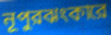
নূপুরঝংকারে